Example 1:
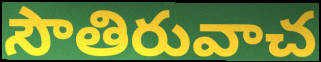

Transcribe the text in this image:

సౌతిరువాచ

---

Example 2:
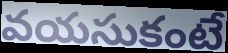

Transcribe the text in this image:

వయసుకంటే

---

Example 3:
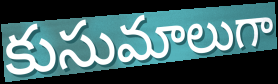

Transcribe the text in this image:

కుసుమాలుగా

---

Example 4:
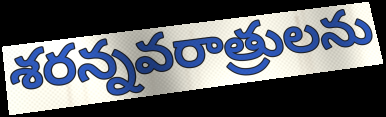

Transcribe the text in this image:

శరన్నవరాత్రులను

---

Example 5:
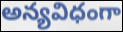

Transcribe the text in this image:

అన్యవిధంగా